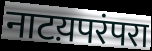
नाटय़परंपरा